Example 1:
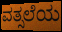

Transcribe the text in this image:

ವತ್ಸಲೆಯ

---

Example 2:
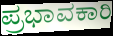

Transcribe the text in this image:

ಪ್ರಭಾವಕಾರಿ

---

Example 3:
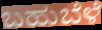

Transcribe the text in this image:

ಬಹುಬೆಳೆ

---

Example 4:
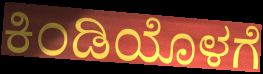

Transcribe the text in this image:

ಕಿಂಡಿಯೊಳಗೆ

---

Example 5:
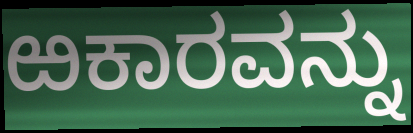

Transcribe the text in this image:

ಱಕಾರವನ್ನು